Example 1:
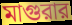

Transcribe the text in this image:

মাগুরার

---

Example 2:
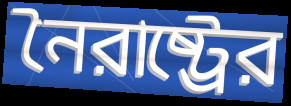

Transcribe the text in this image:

নৈরাষ্ট্রের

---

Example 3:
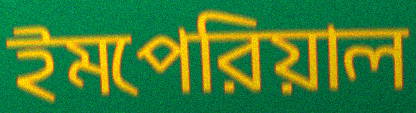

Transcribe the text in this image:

ইমপেরিয়াল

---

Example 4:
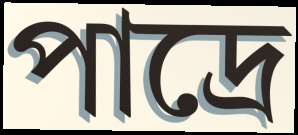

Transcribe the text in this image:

পাদ্রে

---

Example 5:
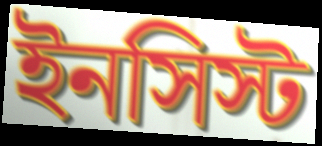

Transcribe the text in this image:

ইনসিস্ট